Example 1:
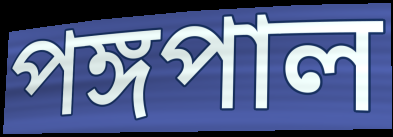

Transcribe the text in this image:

পঙ্গপাল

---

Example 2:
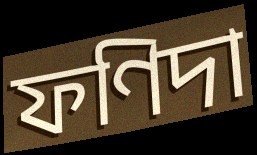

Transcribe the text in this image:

ফণিদা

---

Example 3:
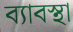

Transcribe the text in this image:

ব্যাবস্থা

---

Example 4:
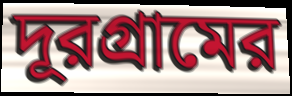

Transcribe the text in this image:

দূরগ্রামের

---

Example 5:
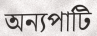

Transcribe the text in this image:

অন্যপাটি